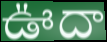
ఊదా